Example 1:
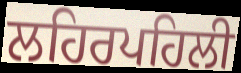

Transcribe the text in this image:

ਲਹਿਰਪਹਿਲੀ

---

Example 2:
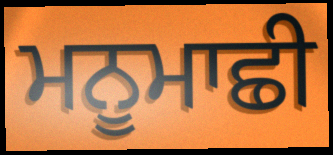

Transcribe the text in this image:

ਮਨੂਮਾਛੀ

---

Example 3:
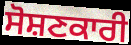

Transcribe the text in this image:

ਸੋਸ਼ਣਕਾਰੀ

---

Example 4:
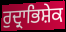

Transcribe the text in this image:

ਰੁਦ੍ਰਾਭਿਸ਼ੇਕ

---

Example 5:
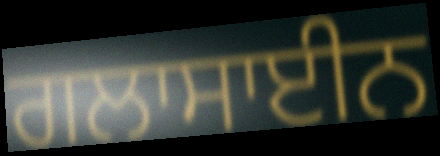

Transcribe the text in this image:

ਗਲਾਸਾਈਨ